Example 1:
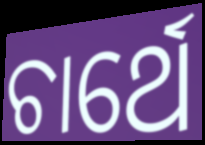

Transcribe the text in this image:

ଚାର୍ଥେ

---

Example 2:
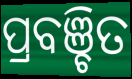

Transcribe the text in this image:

ପ୍ରବଞ୍ଚିତ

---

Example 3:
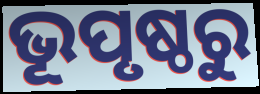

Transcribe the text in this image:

ଭୂପୃଷ୍ଠରୁ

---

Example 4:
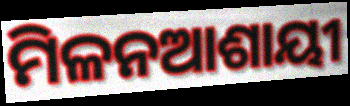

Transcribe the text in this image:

ମିଳନଆଶାୟୀ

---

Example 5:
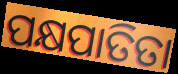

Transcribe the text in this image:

ପକ୍ଷପାତିତା